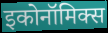
इकोनॉमिक्स